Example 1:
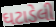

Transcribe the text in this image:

ઘટાડેલી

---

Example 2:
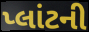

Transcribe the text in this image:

પ્લાંટની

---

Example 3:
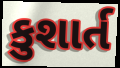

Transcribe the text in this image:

કુશાર્ત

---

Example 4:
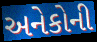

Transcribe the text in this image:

અનેકોની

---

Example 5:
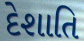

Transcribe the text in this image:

દેશાતિ